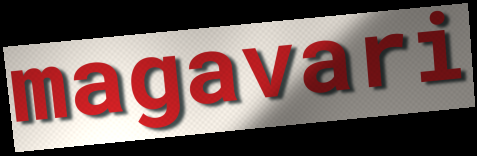
magavari